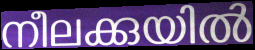
നീലക്കുയിൽ